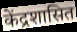
केंद्रशासित